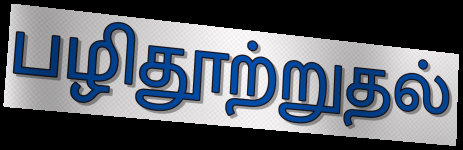
பழிதூற்றுதல்